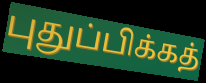
புதுப்பிக்கத்